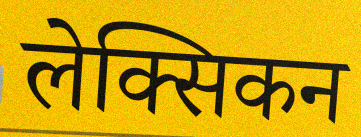
लेक्सिकन